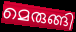
മെരുങ്ങി